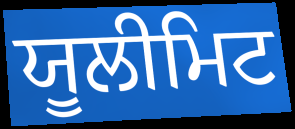
ਯੂਲੀਮਿਟ